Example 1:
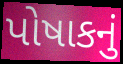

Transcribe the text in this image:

પોષાકનું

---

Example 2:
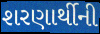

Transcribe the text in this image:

શરણાર્થીની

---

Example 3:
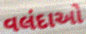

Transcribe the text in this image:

વલંદાઓ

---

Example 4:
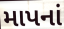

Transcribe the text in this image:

માપનાં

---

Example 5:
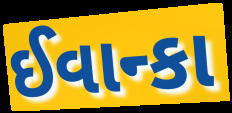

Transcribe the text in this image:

ઈવાન્કા